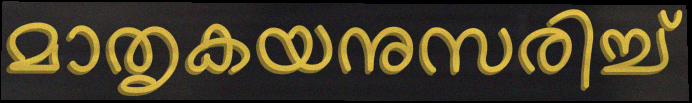
മാതൃകയനുസരിച്ച്